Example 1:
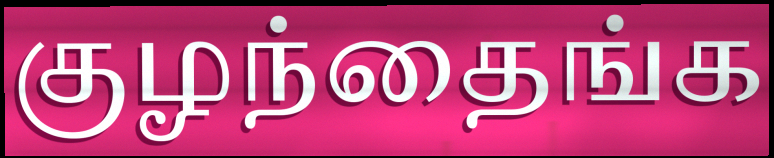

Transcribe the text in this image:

குழந்தைங்க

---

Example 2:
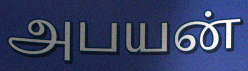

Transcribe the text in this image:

அபயன்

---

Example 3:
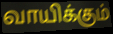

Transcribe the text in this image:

வாயிக்கும்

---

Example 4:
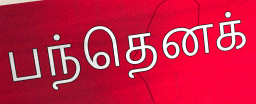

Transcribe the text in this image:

பந்தெனக்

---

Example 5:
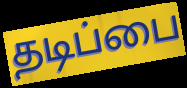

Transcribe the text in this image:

தடிப்பை